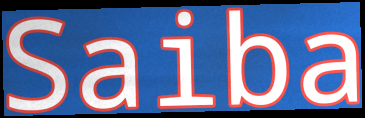
Saiba